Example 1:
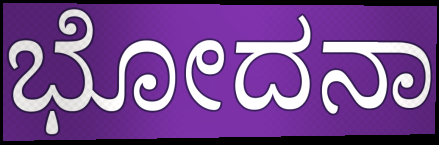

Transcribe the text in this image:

ಭೋದನಾ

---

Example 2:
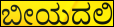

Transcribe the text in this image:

ಬೀಯದಲಿ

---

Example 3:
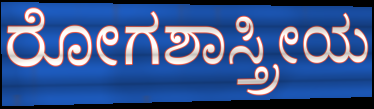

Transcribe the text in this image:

ರೋಗಶಾಸ್ತ್ರೀಯ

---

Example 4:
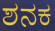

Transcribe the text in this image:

ಶನಕ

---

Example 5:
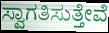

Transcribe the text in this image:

ಸ್ವಾಗತಿಸುತ್ತೇವೆ